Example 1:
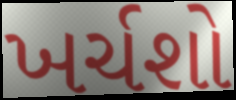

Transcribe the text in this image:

ખર્ચશો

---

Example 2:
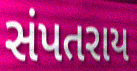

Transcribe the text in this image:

સંપતરાય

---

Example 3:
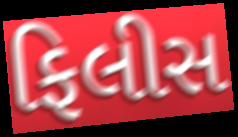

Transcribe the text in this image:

ફિલીસ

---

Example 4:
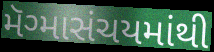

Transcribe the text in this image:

મૅગ્માસંચયમાંથી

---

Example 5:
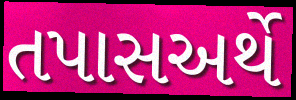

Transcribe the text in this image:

તપાસઅર્થે